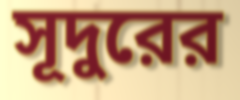
সূদুরের